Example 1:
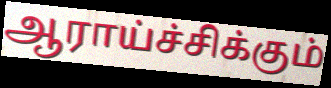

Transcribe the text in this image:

ஆராய்ச்சிக்கும்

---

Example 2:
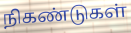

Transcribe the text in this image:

நிகண்டுகள்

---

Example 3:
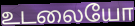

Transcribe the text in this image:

உடலையோ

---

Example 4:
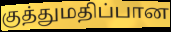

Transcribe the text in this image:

குத்துமதிப்பான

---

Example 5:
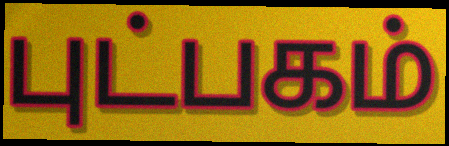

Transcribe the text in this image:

புட்பகம்